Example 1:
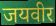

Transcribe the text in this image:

जयवीर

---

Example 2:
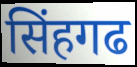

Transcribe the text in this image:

सिंहगढ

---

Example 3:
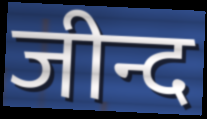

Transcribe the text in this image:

जीन्द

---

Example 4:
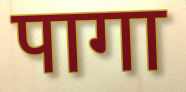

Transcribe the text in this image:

पागा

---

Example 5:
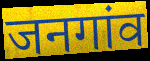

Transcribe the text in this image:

जनगांव